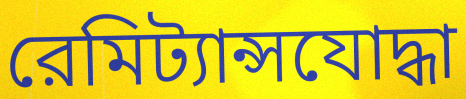
রেমিট্যান্সযোদ্ধা